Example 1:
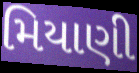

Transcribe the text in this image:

મિયાણી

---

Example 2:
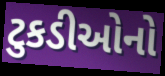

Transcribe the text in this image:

ટુકડીઓનો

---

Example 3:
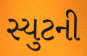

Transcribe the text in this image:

સ્યુટની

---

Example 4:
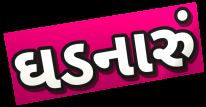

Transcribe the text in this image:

ઘડનારું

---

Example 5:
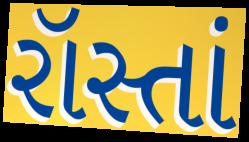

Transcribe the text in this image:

રૉસ્તાં